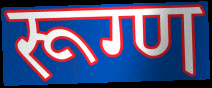
रूग्ण